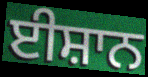
ਈਸ਼ਾਨ